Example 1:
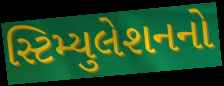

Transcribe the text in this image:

સ્ટિમ્યુલેશનનો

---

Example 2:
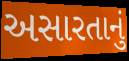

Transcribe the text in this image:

અસારતાનું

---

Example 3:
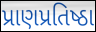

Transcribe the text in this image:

પ્રાણપ્રતિષ્ઠા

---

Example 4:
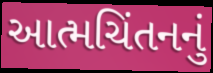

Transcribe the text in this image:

આત્મચિંતનનું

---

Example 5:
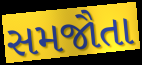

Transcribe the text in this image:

સમજૌતા